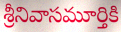
శ్రీనివాసమూర్తికి